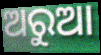
ଅରୁଆ